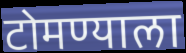
टोमण्याला